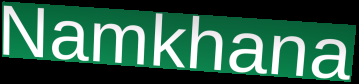
Namkhana